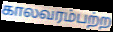
காலவரம்பற்ற